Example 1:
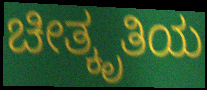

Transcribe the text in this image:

ಚೀತ್ಕೃತಿಯ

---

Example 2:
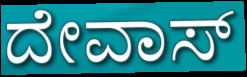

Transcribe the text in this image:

ದೇವಾಸ್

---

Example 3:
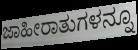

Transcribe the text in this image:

ಜಾಹೀರಾತುಗಳನ್ನೂ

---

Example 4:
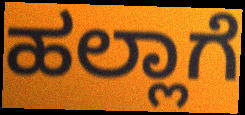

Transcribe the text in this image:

ಹಲ್ಲಾಗೆ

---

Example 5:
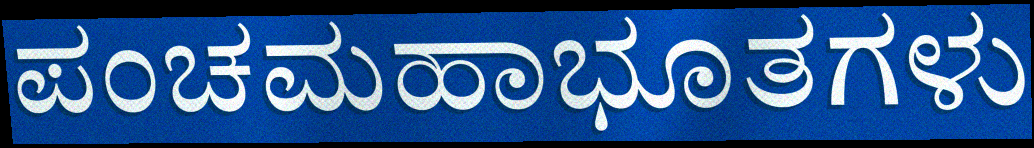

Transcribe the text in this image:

ಪಂಚಮಹಾಭೂತಗಳು